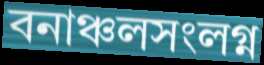
বনাঞ্চলসংলগ্ন